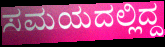
ಸಮಯದಲ್ಲಿದ್ದ